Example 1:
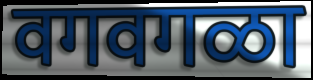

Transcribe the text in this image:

वगवगळा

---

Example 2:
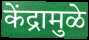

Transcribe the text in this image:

केंद्रामुळे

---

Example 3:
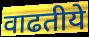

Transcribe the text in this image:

वाढतीये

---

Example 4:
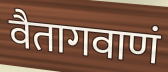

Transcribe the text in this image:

वैतागवाणं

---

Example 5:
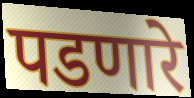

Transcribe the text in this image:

पडणारे